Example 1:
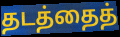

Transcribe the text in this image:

தடத்தைத்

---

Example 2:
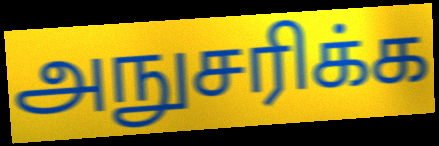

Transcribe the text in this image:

அநுசரிக்க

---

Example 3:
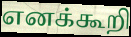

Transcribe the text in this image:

எனக்கூறி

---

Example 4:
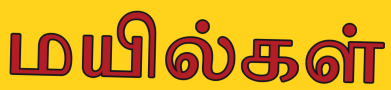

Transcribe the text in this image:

மயில்கள்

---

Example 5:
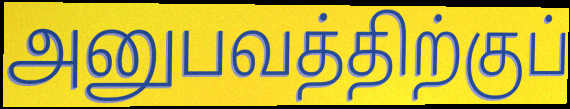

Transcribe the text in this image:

அனுபவத்திற்குப்